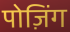
पोज़िंग